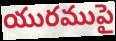
యురముపై